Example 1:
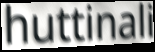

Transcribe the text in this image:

huttinali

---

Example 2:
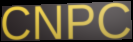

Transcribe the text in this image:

CNPC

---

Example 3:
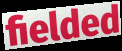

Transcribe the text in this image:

fielded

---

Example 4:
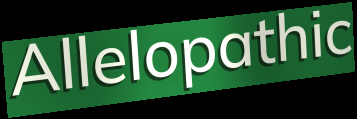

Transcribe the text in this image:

Allelopathic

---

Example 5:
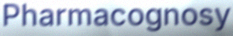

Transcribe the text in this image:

Pharmacognosy